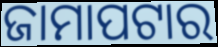
ଜାମାପଟାର